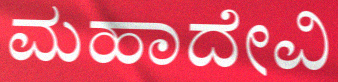
ಮಹಾದೇವಿ